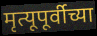
मृत्यूपूर्वीच्या